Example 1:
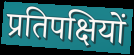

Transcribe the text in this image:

प्रतिपक्षियों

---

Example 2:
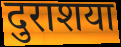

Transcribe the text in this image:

दुराशया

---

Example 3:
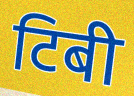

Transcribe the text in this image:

टिबी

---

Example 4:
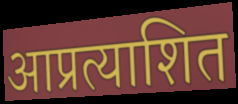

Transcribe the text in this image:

आप्रत्याशित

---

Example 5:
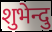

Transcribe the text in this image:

शुभेन्दु